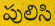
పులిసి